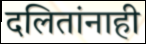
दलितांनाही